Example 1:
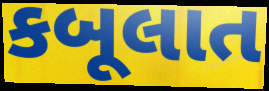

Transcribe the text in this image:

કબૂલાત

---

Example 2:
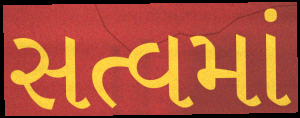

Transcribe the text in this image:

સત્વમાં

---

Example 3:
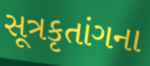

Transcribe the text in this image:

સૂત્રકૃતાંગના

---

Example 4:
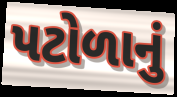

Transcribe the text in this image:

પટોળાનું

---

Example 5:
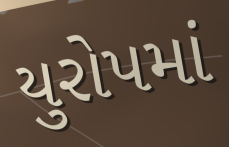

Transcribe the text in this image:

યુરોપમાં